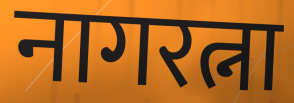
नागरत्ना